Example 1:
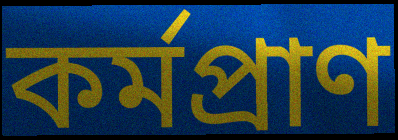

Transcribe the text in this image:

কর্মপ্রাণ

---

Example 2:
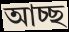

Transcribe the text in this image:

আচ্ছ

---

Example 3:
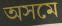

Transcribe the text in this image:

অসমে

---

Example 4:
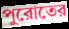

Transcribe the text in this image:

পুরোতের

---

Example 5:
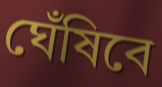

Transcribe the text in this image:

ঘেঁষিবে